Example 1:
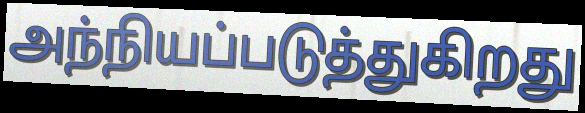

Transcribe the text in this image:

அந்நியப்படுத்துகிறது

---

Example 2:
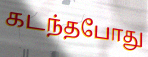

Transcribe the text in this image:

கடந்தபோது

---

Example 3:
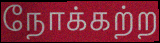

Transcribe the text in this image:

நோக்கற்ற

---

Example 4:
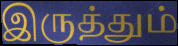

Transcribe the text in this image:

இருத்தும்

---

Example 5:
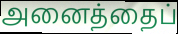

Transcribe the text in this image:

அனைத்தைப்